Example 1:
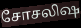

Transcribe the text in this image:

சோசலிஷ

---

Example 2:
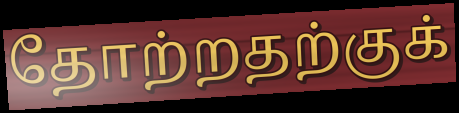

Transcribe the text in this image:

தோற்றதற்குக்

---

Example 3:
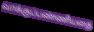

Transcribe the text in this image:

வாக்குப்பண்ணியதை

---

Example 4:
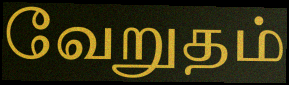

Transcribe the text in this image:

வேறுதம்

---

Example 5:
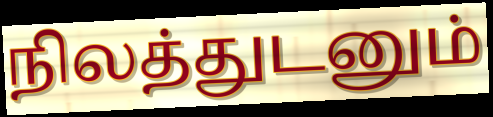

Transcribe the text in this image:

நிலத்துடனும்